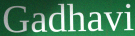
Gadhavi